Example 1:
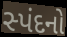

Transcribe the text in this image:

સ્પંદનો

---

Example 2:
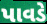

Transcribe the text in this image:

પાવડે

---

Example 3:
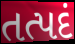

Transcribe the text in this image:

તત્પદં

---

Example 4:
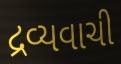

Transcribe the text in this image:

દ્રવ્યવાચી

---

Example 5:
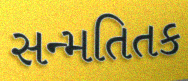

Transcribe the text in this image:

સન્મતિતક